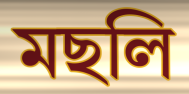
মছলি